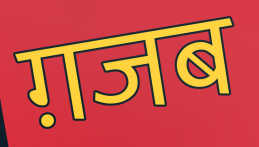
ग़जब